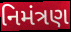
નિમંત્રણ